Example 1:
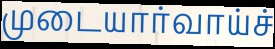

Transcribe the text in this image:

முடையார்வாய்ச்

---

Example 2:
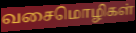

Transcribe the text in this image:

வசைமொழிகள்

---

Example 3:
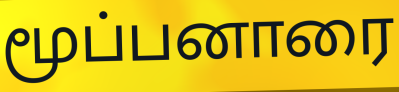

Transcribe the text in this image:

மூப்பனாரை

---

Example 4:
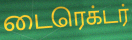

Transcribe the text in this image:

டைரெக்டர்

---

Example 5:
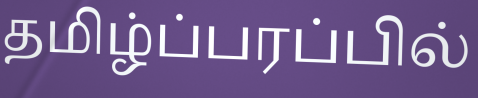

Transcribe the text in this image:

தமிழ்ப்பரப்பில்